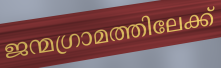
ജന്മഗ്രാമത്തിലേക്ക്